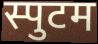
स्पुटम